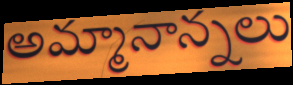
అమ్మానాన్నలు